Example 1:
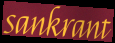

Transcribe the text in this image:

sankrant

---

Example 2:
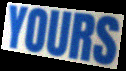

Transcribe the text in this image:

YOURS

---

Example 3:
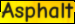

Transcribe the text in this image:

Asphalt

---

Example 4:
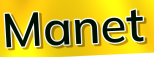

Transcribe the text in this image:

Manet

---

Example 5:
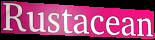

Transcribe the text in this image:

Rustacean